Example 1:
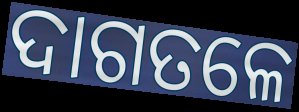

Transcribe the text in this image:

ଦାଗତଳେ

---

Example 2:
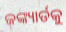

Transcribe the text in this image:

ଜଙ୍କ୍ୟାର୍ଡକୁ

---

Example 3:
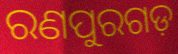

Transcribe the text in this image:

ରଣପୁରଗଡ଼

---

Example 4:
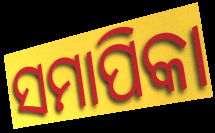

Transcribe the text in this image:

ସମାପିକା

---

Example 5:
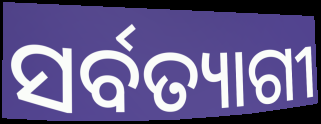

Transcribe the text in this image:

ସର୍ବତ୍ୟାଗୀ